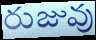
రుజువు